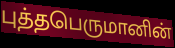
புத்தபெருமானின்